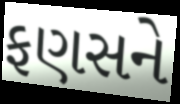
ફણસને